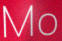
Mo